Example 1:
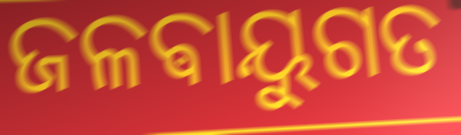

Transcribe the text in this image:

ଜଳଵାୟୁଗତ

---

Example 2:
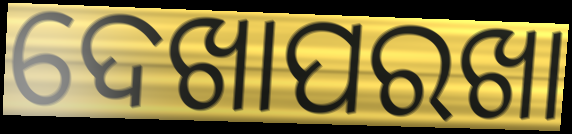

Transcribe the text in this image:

ଦେଖାପରଖା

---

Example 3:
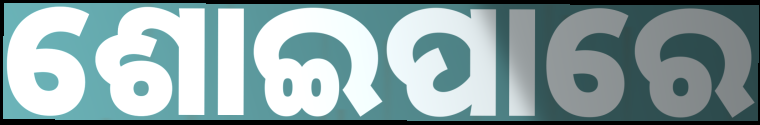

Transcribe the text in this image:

ଶୋଇପାରେ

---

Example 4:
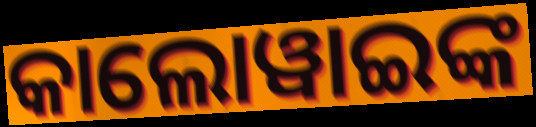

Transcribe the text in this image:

କାଲୋୱାଇଙ୍କ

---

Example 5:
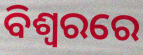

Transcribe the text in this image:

ବିଶ୍ବରରେ